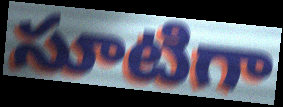
సూటిగా